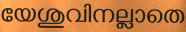
യേശുവിനല്ലാതെ